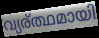
വ്യര്ത്ഥമായി